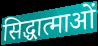
सिद्धात्माओं